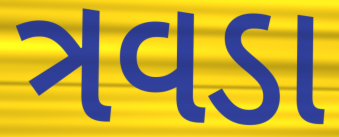
ત્રવડા